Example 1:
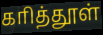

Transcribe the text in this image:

கரித்தூள்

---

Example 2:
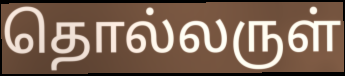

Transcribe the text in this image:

தொல்லருள்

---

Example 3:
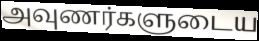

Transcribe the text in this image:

அவுணர்களுடைய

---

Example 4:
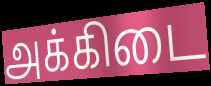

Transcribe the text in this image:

அக்கிடை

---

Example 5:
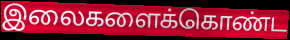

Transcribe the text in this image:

இலைகளைக்கொண்ட